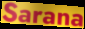
Sarana